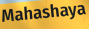
Mahashaya